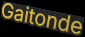
Gaitonde